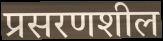
प्रसरणशील